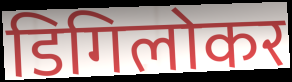
डिगिलोकर